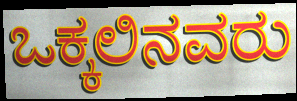
ಒಕ್ಕಲಿನವರು